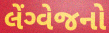
લેંગ્વેજનો